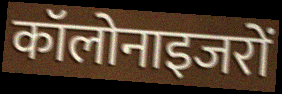
कॉलोनाइजरों